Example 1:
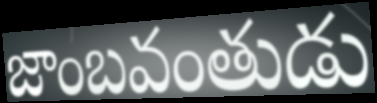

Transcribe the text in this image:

జాంబవంతుడు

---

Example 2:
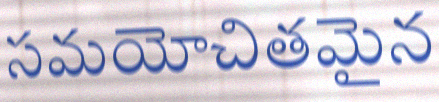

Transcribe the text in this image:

సమయోచితమైన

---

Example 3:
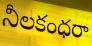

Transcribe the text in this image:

నీలకంధరా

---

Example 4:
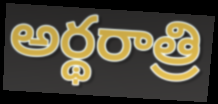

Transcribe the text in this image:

అర్థరాత్రి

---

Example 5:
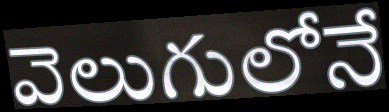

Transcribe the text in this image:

వెలుగులోనే